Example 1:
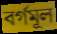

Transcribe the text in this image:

বৰ্গমূল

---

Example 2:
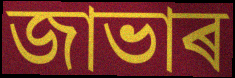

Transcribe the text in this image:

জাভাৰ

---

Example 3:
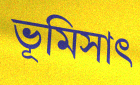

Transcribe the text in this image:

ভূমিসাৎ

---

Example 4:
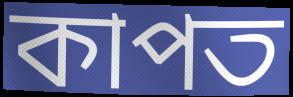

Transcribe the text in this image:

কাপত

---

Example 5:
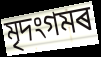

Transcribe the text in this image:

মৃদংগমৰ